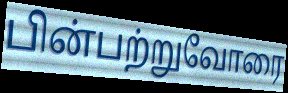
பின்பற்றுவோரை